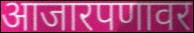
आजारपणावर